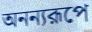
অনন্যরূপে